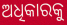
ଅଧିକାରକୁ